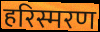
हरिस्मरण